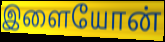
இளையோன்